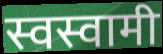
स्वस्वामी